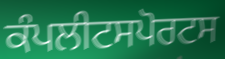
ਕੰਪਲੀਟਸਪੋਰਟਸ